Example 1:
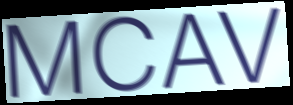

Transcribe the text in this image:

MCAV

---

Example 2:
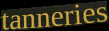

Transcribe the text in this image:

tanneries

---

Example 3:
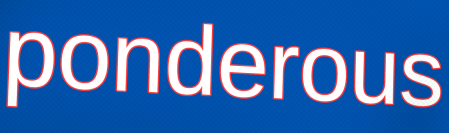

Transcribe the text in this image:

ponderous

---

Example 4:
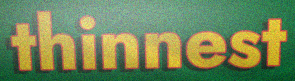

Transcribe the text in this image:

thinnest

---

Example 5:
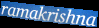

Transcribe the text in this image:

ramakrishna